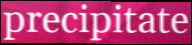
precipitate